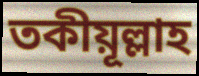
তকীয়ূল্লাহ